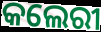
କଲେରୀ